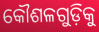
କୌଶଳଗୁଡ଼ିକୁ